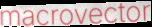
macrovector